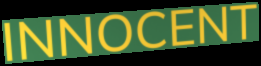
INNOCENT